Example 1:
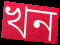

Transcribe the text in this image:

খন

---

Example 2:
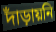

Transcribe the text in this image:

দাঁড়ায়নি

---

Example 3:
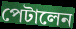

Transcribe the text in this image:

পেটালেন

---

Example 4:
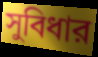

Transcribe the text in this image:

সুবিধার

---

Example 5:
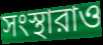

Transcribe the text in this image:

সংস্থারাও